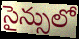
సైన్సులో